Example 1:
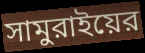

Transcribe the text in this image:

সামুরাইয়ের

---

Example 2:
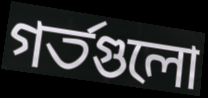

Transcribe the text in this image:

গর্তগুলো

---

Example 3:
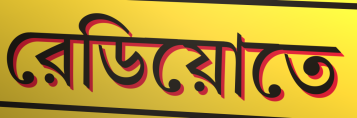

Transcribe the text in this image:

রেডিয়োতে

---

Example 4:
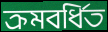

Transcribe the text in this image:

ক্রমবর্ধিত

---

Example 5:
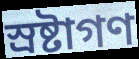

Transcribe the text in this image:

স্রষ্টাগণ